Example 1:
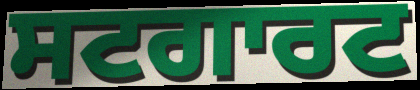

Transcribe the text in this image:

ਸਟਗਾਰਟ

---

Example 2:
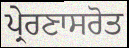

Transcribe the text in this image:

ਪ੍ਰੇਰਣਾਸਰੋਤ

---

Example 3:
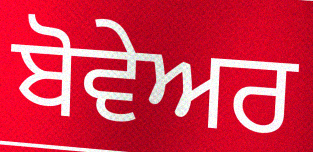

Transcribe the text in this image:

ਬੋਵੇਅਰ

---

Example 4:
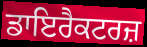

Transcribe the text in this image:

ਡਾਇਰੈਕਟਰਜ਼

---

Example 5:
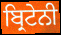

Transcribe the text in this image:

ਬ੍ਰਿਟੇਨੀ